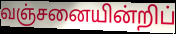
வஞ்சனையின்றிப்